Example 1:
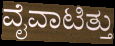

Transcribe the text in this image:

ವೈವಾಟಿತ್ತು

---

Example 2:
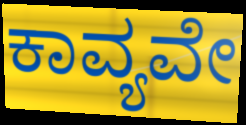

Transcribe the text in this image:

ಕಾವ್ಯವೇ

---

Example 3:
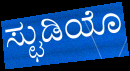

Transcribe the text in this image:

ಸ್ಟುಡಿಯೊ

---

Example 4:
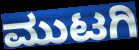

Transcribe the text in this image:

ಮುಟಗಿ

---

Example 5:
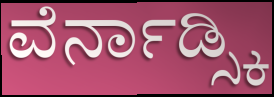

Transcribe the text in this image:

ವೆರ್ನಾಡ್ಸ್ಕಿ